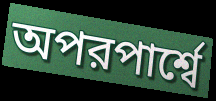
অপরপার্শ্বে